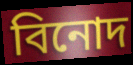
বিনোদ